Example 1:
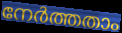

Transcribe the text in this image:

നേർത്തതാം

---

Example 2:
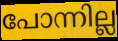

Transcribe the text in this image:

പോന്നില്ല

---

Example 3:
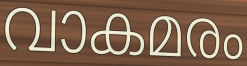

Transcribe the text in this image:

വാകമരം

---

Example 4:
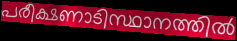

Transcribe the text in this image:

പരീക്ഷണാടിസ്ഥാനത്തിൽ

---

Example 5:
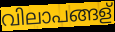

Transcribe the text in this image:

വിലാപങ്ങള്